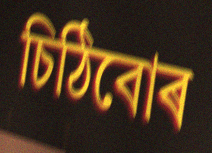
চিঠিবোৰ